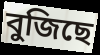
বুজিছে